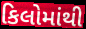
કિલોમાંથી